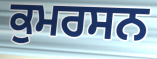
ਕੁਮਰਸਨ